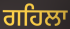
ਗਹਿਲਾ